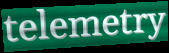
telemetry